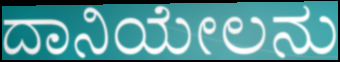
ದಾನಿಯೇಲನು